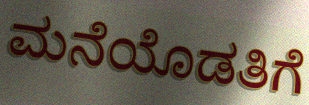
ಮನೆಯೊಡತಿಗೆ